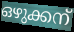
ഒഴുക്കന്